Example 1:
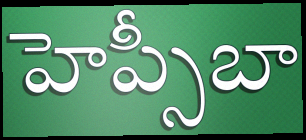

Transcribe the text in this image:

హెప్సీబా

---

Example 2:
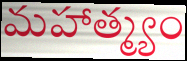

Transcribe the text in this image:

మహాత్మ్యం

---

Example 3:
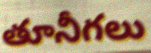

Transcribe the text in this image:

తూనీగలు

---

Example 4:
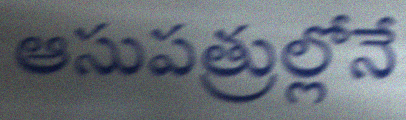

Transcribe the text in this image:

ఆసుపత్రుల్లోనే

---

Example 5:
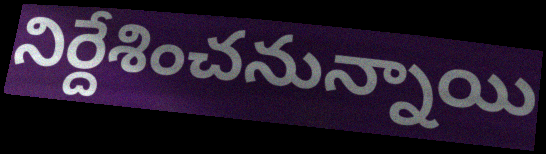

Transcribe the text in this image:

నిర్దేశించనున్నాయి